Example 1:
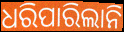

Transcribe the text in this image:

ଧରିପାରିଲାନି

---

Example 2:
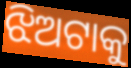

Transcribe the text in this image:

ଝିଅଟାକୁ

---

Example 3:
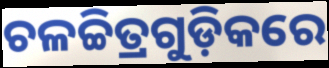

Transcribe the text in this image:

ଚଳଚ୍ଚିତ୍ରଗୁଡ଼ିକରେ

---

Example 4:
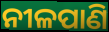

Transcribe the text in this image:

ନୀଳପାଣି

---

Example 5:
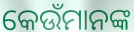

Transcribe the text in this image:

କେଉଁମାନଙ୍କ